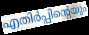
എതിർപ്പിന്റെയും